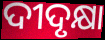
ଦୀଦୃକ୍ଷା